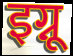
इग्नू